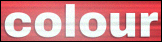
colour